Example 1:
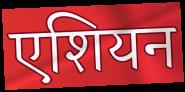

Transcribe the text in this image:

एशियन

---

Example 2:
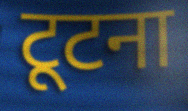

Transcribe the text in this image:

टूटना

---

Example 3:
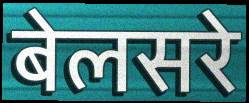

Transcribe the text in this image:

बेलसरे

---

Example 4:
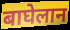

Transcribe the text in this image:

बाघेलान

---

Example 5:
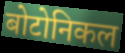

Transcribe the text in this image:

बोटोनिकल